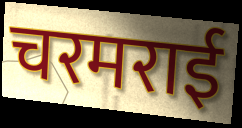
चरमराई